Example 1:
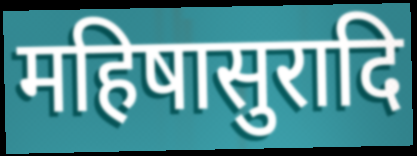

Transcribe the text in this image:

महिषासुरादि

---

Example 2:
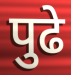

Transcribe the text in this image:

पुढे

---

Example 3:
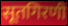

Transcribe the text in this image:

सूतगिरणी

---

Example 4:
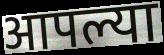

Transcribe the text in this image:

आपल्या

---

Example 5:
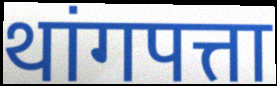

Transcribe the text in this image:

थांगपत्ता